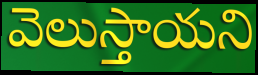
వెలుస్తాయని